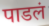
पाडलं